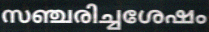
സഞ്ചരിച്ചശേഷം